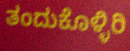
ತಂದುಕೊಳ್ಳಿರಿ